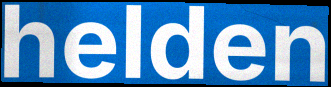
helden